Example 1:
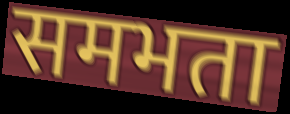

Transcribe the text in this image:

समभता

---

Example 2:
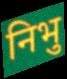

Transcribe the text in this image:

निभु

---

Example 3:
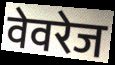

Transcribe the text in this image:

वेवरेज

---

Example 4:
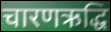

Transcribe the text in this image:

चारणऋद्धि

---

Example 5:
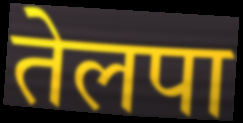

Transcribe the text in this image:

तेलपा